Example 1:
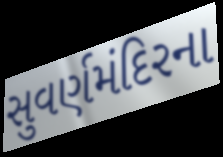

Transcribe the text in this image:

સુવર્ણમંદિરના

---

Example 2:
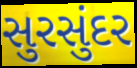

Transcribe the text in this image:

સુરસુંદર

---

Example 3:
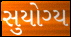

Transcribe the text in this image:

સુયોગ્ય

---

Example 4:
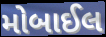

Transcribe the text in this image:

મોબાઈલ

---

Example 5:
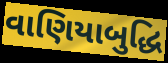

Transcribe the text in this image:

વાણિયાબુદ્ધિ